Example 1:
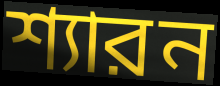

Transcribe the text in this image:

শ্যারন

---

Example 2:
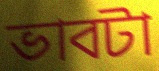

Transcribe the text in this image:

ভাবটা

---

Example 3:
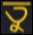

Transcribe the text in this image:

তু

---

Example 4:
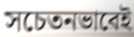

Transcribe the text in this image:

সচেতনভাবেই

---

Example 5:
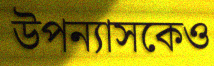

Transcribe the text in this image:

উপন্যাসকেও